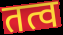
तत्व